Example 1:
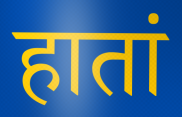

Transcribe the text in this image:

हातां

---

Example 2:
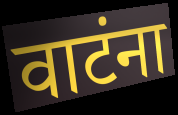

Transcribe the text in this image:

वाटंना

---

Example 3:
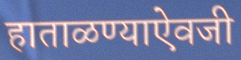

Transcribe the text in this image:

हाताळण्याऐवजी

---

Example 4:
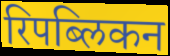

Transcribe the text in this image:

रिपब्लिकन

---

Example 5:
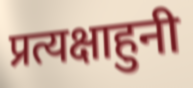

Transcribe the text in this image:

प्रत्यक्षाहुनी